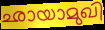
ഛായാമുഖി